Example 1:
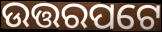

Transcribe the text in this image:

ଉତ୍ତରପଟେ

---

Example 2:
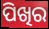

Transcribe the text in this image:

ପିଖିର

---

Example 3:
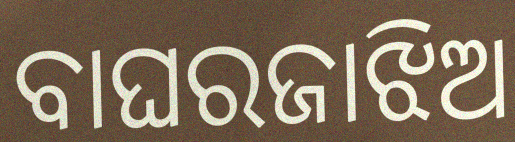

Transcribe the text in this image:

ବାଘରଜାଝିଅ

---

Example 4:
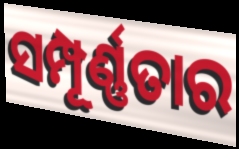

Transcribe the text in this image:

ସମ୍ପୂର୍ଣ୍ଣତାର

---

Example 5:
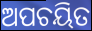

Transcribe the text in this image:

ଅପଚୟିତ